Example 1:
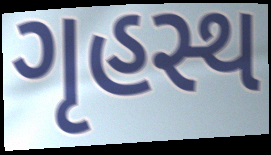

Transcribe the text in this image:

ગૃહસ્થ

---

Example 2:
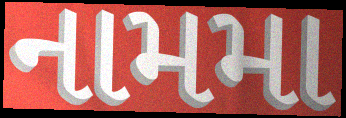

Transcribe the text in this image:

નામમા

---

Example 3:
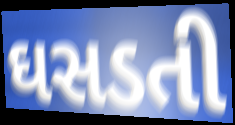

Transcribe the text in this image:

ઘસડતી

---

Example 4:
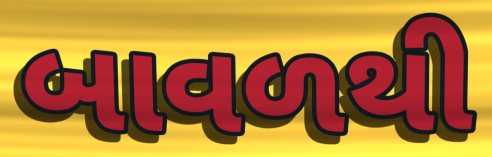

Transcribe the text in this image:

બાવળથી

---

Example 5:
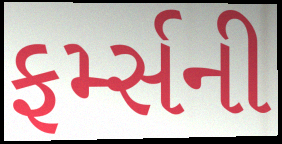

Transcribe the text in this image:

ફર્મ્સની